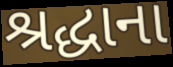
શ્રદ્ધાના